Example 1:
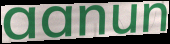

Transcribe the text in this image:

aanun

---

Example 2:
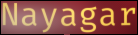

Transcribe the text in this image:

Nayagar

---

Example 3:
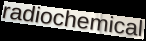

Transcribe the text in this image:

radiochemical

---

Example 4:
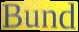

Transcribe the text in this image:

Bund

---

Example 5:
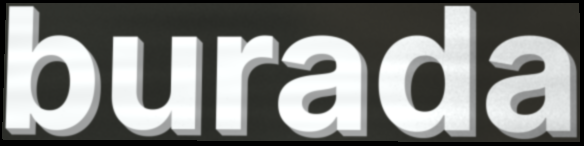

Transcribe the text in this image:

burada